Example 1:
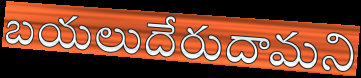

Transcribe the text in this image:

బయలుదేరుదామని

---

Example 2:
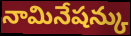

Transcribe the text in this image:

నామినేషన్కు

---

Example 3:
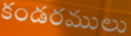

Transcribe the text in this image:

కండరములు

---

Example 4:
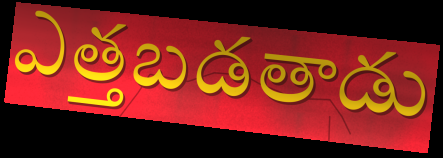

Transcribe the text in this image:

ఎత్తబడతాడు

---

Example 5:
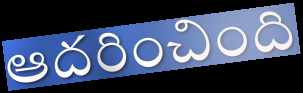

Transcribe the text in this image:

ఆదరించింది